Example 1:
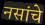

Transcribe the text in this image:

नसांचे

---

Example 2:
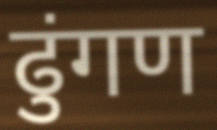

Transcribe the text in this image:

ढुंगण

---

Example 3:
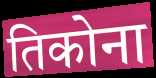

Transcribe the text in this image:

तिकोना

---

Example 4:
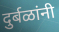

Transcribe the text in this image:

दुर्बळांनी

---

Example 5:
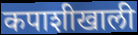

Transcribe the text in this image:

कपाशीखाली